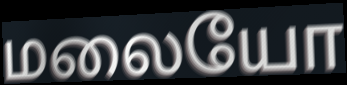
மலையோ